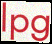
lpg